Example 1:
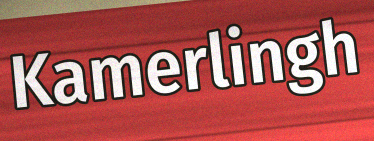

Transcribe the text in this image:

Kamerlingh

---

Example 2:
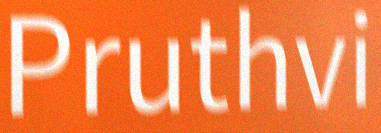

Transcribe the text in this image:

Pruthvi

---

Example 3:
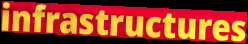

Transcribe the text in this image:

infrastructures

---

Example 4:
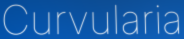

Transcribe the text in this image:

Curvularia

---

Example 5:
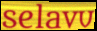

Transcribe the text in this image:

selavu